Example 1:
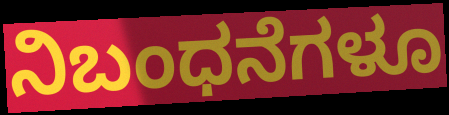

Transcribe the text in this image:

ನಿಬಂಧನೆಗಳೂ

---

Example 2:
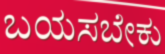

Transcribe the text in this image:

ಬಯಸಬೇಕು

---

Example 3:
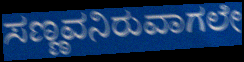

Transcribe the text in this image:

ಸಣ್ಣವನಿರುವಾಗಲೇ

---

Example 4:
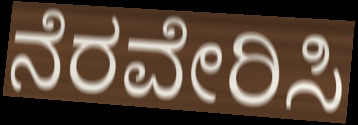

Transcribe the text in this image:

ನೆರವೇರಿಸಿ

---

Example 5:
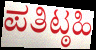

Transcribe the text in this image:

ಪತಿಟ್ಠಹಿ